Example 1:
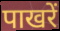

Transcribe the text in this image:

पाखरें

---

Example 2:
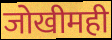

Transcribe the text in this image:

जोखीमही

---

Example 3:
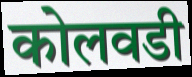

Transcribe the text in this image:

कोलवडी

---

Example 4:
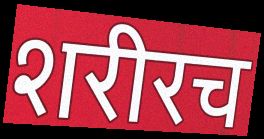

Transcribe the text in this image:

शरीरच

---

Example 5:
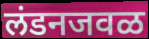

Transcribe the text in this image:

लंडनजवळ